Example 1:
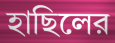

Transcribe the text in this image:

হাছিলের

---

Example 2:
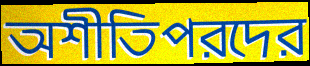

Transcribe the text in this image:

অশীতিপরদের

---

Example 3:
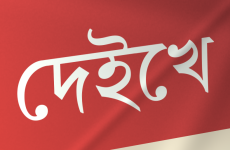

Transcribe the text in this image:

দেইখে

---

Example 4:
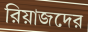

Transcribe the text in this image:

রিয়াজদের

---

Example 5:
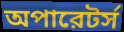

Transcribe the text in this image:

অপারেটর্স